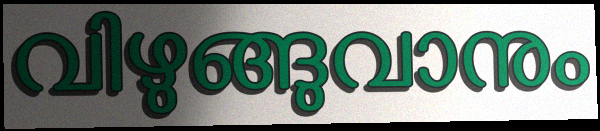
വിഴുങ്ങുവാനും